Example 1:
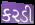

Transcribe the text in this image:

કરડી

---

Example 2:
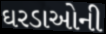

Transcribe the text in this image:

ઘરડાઓની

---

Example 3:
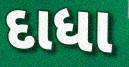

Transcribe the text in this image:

દાધા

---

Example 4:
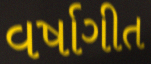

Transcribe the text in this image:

વર્ષાગીત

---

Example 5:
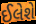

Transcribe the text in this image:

ઈલેશે